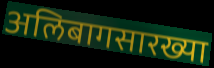
अलिबागसारख्या